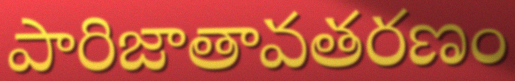
పారిజాతావతరణం